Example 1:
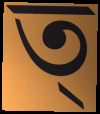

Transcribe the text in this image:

ত্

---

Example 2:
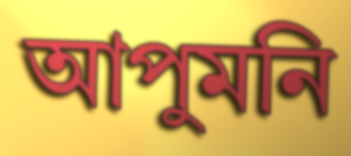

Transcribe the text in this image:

আপুমনি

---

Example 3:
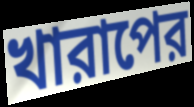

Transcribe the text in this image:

খারাপের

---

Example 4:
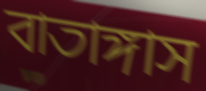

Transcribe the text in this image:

বাতাঙ্গাস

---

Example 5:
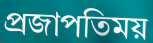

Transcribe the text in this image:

প্রজাপতিময়